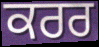
ਕਰਰ